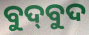
ବୁଦ୍‍ବୁଦ